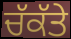
ਚੱਕੱਤੇ